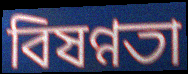
বিষণ্ণতা